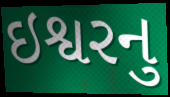
ઇશ્વરનુ